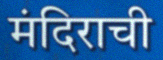
मंदिराची